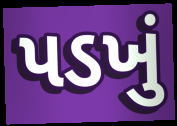
પડખું